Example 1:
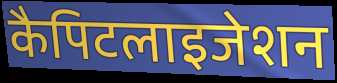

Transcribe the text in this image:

कैपिटलाइजेशन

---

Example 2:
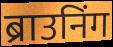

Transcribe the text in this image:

ब्राउनिंग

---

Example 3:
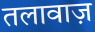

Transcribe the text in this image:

तलावाज़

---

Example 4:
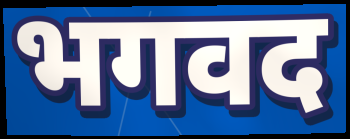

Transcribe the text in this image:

भगवद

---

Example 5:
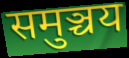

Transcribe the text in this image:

समुञ्चय